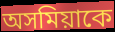
অসমিয়াকে